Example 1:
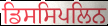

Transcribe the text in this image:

ਡਿਸਸਿਪਲਿਨ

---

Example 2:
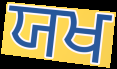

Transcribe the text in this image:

ਯਖ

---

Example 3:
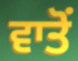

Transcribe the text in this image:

ਵਾਤੋਂ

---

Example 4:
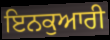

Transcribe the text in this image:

ਇਨਕੁਆਰੀ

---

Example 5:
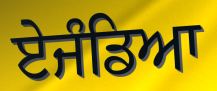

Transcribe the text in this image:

ਏਜੰਡਿਆ